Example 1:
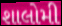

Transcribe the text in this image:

શાલોમી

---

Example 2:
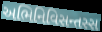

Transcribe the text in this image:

અભિનિવિસન્તસ્સ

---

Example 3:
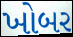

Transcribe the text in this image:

ખોબર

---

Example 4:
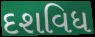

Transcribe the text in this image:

દશવિધ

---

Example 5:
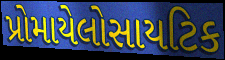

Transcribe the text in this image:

પ્રોમાયેલોસાયટિક